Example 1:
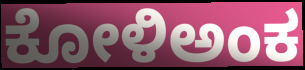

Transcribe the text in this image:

ಕೋಳಿಅಂಕ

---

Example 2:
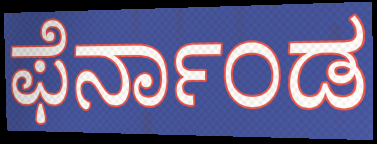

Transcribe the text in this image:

ಫೆರ್ನಾಂಡ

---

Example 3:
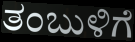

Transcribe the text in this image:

ತಂಬುಳಿಗೆ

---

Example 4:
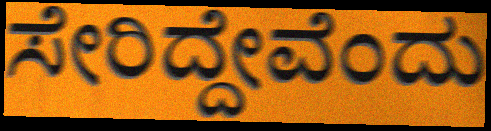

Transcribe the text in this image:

ಸೇರಿದ್ದೇವೆಂದು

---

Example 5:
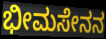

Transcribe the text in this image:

ಭೀಮಸೇನನ